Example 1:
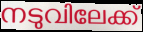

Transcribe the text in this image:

നടുവിലേക്ക്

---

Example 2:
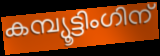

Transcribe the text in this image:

കമ്പ്യൂട്ടിംഗിന്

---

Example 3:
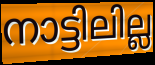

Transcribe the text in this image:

നാട്ടിലില്ല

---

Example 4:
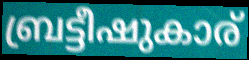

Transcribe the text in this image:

ബ്രട്ടീഷുകാര്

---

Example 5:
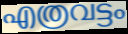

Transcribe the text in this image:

എത്രവട്ടം